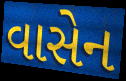
વાસેન